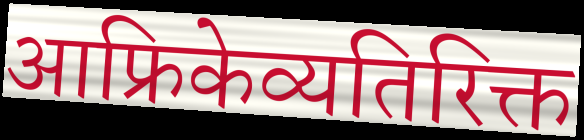
आफ्रिकेव्यतिरिक्त